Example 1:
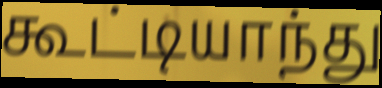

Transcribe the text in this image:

கூட்டியாந்து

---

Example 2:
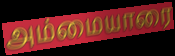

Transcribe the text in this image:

அம்மையாரை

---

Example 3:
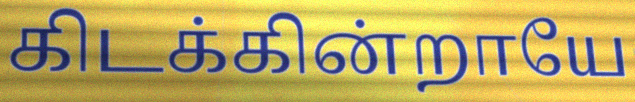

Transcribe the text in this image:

கிடக்கின்றாயே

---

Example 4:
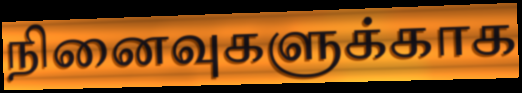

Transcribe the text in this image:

நினைவுகளுக்காக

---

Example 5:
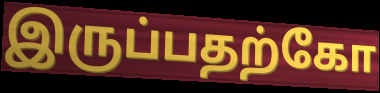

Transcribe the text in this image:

இருப்பதற்கோ